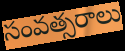
సంవత్సరాలు